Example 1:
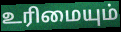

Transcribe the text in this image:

உரிமையும்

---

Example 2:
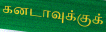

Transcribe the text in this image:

கனடாவுக்குக்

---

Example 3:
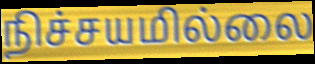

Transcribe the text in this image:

நிச்சயமில்லை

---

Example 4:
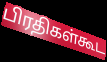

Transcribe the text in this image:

பிரதிகள்கூட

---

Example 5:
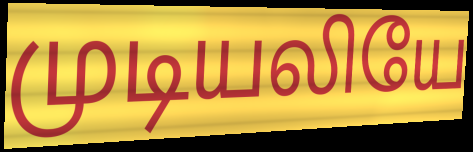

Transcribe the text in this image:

முடியலியே